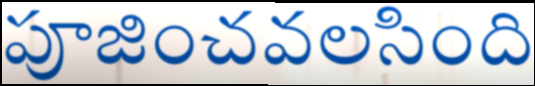
పూజించవలసింది